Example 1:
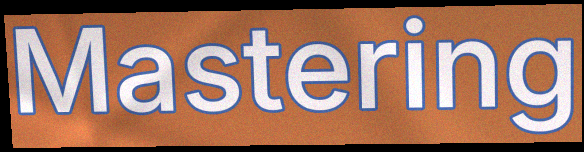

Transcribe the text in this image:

Mastering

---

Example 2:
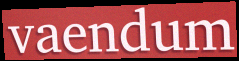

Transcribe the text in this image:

vaendum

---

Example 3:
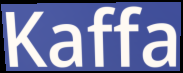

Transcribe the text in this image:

Kaffa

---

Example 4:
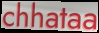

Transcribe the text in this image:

chhataa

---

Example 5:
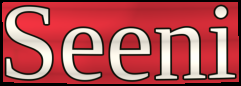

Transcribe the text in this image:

Seeni